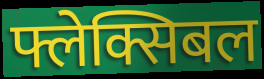
फ्लेक्सिबल